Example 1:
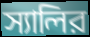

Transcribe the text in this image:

স্যালির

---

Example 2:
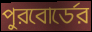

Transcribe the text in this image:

পুরবোর্ডের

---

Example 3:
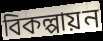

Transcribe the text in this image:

বিকল্পায়ন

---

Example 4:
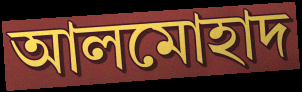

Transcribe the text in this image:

আলমোহাদ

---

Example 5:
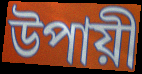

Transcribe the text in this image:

উপায়ী